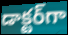
డాక్టర్‌గా